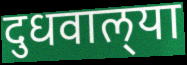
दुधवाल्या